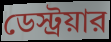
ডেস্ট্রয়ার